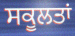
ਸਕੂਲਤਾਂ